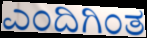
ಎಂದಿಗಿಂತ